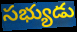
సభ్యుడు